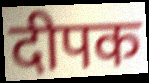
दीपक